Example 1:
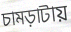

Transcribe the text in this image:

চামড়াটায়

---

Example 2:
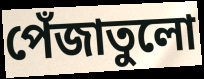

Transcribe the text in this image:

পেঁজাতুলো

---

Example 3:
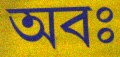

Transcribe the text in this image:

অবঃ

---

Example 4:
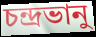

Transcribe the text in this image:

চন্দ্রভানু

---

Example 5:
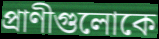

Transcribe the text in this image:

প্রাণীগুলোকে